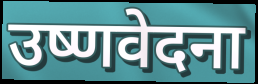
उष्णवेदना